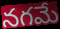
నగమే